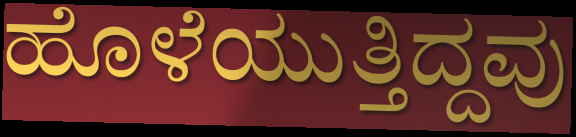
ಹೊಳೆಯುತ್ತಿದ್ದವು